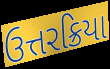
ઉત્તરક્રિયા